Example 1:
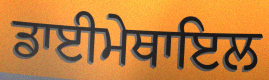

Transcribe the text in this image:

ਡਾਈਮੇਥਾਇਲ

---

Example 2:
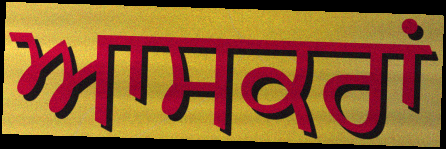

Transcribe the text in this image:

ਆਸਕਰਾਂ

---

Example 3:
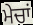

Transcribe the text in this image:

ਮੇਚਾਂ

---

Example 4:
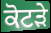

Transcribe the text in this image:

ਕੋਟੜੇ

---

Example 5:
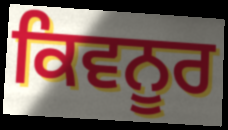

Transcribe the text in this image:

ਕਿਵਨੂਰ